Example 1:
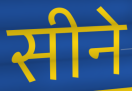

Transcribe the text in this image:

सीने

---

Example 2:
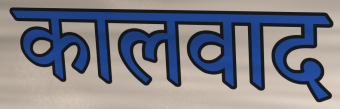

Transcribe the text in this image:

कालवाद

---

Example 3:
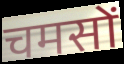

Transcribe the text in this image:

चमसों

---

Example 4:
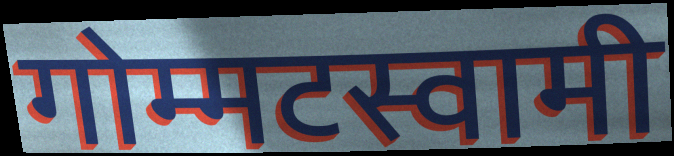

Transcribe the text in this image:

गोम्मटस्वामी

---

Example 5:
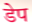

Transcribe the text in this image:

डेप